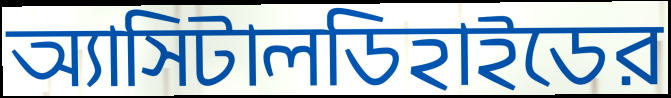
অ্যাসিটালডিহাইডের